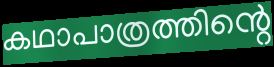
കഥാപാത്രത്തിന്റെ